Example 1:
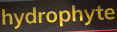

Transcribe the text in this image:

hydrophyte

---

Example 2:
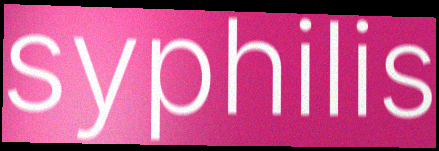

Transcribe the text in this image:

syphilis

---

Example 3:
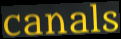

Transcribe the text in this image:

canals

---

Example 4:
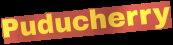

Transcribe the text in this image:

Puducherry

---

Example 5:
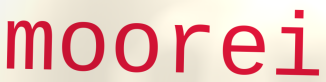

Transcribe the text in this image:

moorei